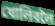
খোলিবলৈ